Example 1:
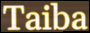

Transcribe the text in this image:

Taiba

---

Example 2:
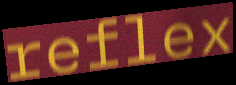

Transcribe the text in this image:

reflex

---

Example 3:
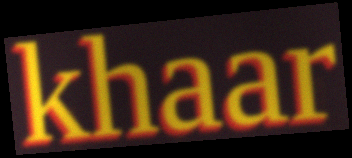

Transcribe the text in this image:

khaar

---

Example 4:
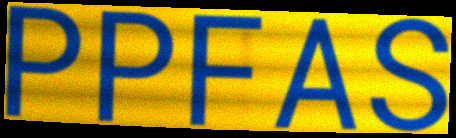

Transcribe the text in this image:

PPFAS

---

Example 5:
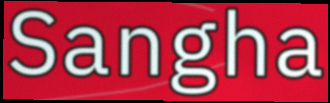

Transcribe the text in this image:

Sangha